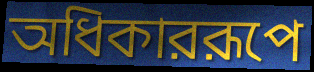
অধিকাররূপে